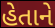
હેતાને